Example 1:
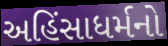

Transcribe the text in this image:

અહિંસાધર્મનો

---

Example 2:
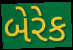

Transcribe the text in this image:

બેરેક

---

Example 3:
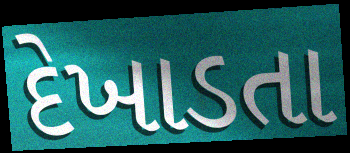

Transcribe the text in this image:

દેખાડતા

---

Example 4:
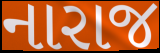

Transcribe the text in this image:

નારાજ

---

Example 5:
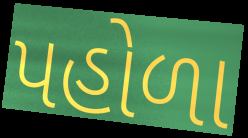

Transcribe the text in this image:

પહોળા